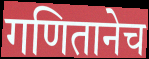
गणितानेच